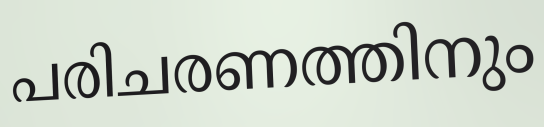
പരിചരണത്തിനും